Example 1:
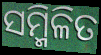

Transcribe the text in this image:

ସମ୍ମିଳିତ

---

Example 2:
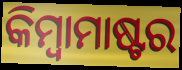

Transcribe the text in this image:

କିମ୍ୱାମାଷ୍ଟର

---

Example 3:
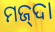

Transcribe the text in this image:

ମଜ୍‌ଦା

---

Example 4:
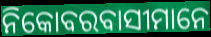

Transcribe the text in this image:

ନିକୋବରବାସୀମାନେ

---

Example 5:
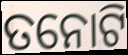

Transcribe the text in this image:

ତନୋଟି